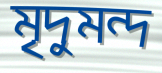
মৃদুমন্দ